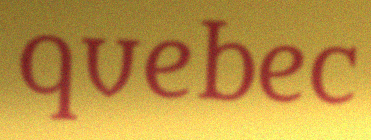
quebec